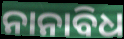
ନାନାବିଧ